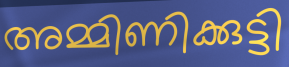
അമ്മിണിക്കുട്ടി